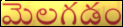
మెలగడం